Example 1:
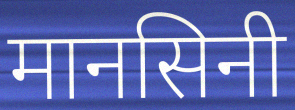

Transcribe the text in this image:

मानसिनी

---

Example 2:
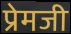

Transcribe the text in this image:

प्रेमजी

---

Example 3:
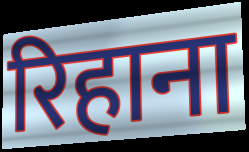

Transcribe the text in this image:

रिहाना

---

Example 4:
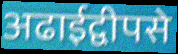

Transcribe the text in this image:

अढाईद्वीपसे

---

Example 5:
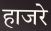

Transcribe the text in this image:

हाजरे